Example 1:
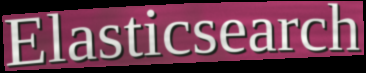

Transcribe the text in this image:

Elasticsearch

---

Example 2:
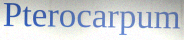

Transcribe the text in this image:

Pterocarpum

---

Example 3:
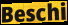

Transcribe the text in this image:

Beschi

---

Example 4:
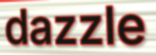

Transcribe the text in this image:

dazzle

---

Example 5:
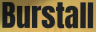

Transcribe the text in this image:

Burstall